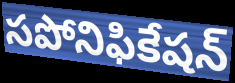
సపోనిఫికేషన్